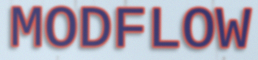
MODFLOW